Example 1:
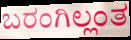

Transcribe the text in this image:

ಬರಂಗಿಲ್ಲಂತ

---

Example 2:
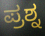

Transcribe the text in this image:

ಪ್ರಶ್ನ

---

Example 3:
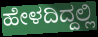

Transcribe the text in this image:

ಹೇಳದಿದ್ದಲ್ಲಿ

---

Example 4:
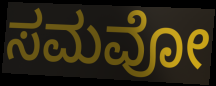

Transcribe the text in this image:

ಸಮವೋ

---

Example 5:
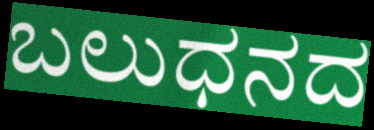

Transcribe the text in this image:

ಬಲುಧನದ